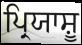
ਪ੍ਰਿਯਾਸ਼ੂ